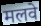
मलवे